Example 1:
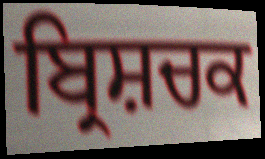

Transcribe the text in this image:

ਬ੍ਰਿਸ਼ਚਕ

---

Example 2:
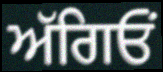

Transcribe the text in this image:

ਅੱਗਿਓਂ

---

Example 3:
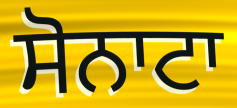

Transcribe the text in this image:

ਸੋਨਾਟਾ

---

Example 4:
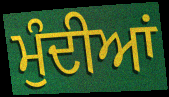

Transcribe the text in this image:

ਮੁੰਦੀਆਂ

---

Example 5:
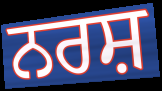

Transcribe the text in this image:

ਨਰਸ਼